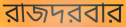
রাজদরবার